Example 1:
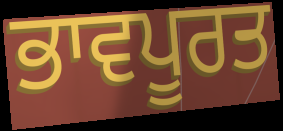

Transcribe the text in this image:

ਭਾਵਪੂਰਤ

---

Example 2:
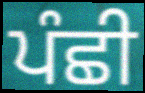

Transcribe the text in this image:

ਪੰਛੀ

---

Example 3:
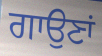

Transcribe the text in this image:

ਗਾਉਣਾਂ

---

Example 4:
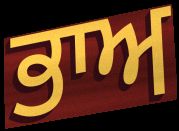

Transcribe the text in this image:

ਭਾਅ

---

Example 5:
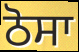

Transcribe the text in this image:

ਠੋਸਾ